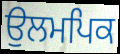
ਉਲਮਪਿਕ